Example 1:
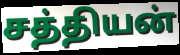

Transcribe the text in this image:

சத்தியன்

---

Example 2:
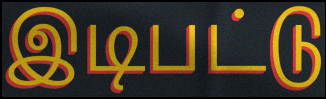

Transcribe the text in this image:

இடிபட்டு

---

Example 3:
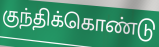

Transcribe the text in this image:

குந்திக்கொண்டு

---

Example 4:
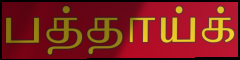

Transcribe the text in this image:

பத்தாய்க்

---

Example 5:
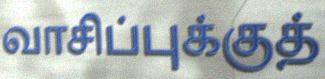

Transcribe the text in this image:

வாசிப்புக்குத்